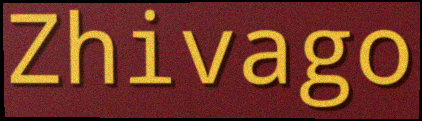
Zhivago